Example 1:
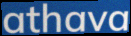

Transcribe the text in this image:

athava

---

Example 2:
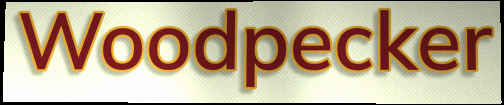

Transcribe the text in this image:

Woodpecker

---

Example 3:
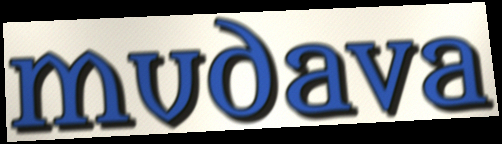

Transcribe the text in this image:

mudava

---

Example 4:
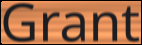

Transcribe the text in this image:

Grant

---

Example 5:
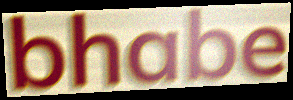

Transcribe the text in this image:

bhabe